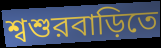
শ্বশুরবাড়িতে